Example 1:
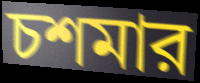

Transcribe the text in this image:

চশমার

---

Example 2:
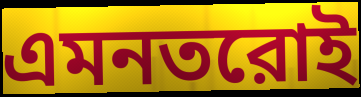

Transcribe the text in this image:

এমনতরোই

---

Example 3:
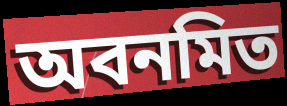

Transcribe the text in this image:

অবনমিত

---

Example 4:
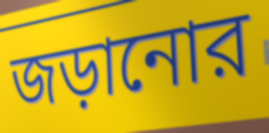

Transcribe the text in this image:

জড়ানোর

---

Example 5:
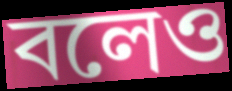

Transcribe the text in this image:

বলেও